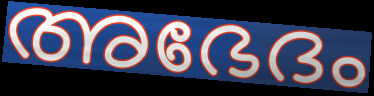
അഭേദം